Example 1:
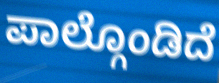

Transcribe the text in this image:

ಪಾಲ್ಗೊಂಡಿದೆ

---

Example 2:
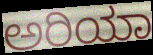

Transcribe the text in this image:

ಅರಿಯಾ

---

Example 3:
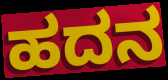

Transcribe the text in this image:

ಹದನ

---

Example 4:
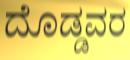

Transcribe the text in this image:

ದೊಡ್ಡವರ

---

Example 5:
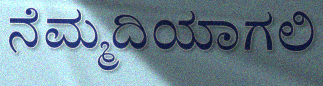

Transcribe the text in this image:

ನೆಮ್ಮದಿಯಾಗಲಿ